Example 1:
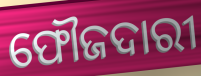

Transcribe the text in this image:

ଫୌଜଦାରୀ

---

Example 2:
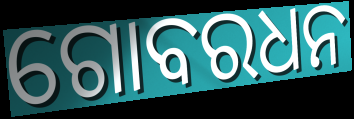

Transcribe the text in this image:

ଗୋବରଧନ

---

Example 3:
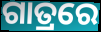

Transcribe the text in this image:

ଗାତ୍ରରେ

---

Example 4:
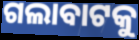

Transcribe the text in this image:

ଗଲାବାଟକୁ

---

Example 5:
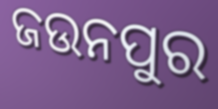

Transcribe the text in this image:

ଜଉନପୁର